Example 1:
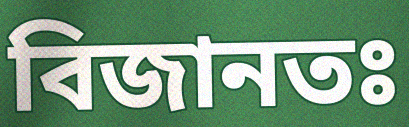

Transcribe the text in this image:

বিজানতঃ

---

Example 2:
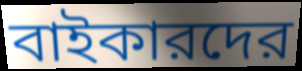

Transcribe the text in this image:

বাইকারদের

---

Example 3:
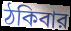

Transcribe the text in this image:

ঠকিবার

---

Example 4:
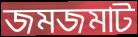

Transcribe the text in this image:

জমজমাট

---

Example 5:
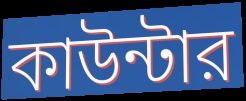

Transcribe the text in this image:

কাউন্টার